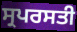
ਸ੍ਰਪਰਸਤੀ